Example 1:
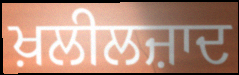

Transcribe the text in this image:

ਖ਼ਲੀਲਜ਼ਾਦ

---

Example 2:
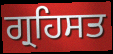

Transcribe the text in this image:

ਗ੍ਰਹਿਸਤ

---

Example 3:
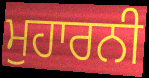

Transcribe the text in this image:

ਮੁਹਾਰਨੀ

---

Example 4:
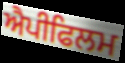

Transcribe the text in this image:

ਐਪੀਫਿਲਮ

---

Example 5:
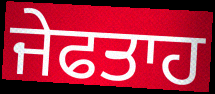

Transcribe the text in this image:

ਜੇਫਤਾਹ